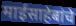
माईसाहेबांचे